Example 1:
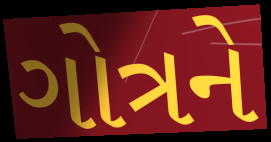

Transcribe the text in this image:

ગોત્રને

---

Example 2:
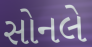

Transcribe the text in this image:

સોનલે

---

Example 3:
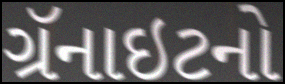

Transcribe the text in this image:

ગ્રૅનાઇટનો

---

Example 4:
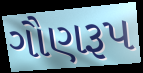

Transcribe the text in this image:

ગૌણરૂપ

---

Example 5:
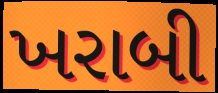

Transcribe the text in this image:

ખરાબી